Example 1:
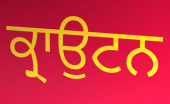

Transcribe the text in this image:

ਕ੍ਰਾਉਟਨ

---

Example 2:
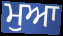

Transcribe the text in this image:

ਮੁਆ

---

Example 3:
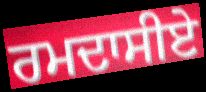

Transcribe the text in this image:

ਰਮਦਾਸੀਏ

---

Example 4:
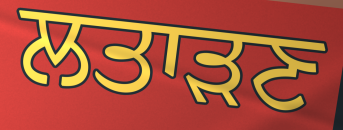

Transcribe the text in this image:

ਲਤਾੜਣ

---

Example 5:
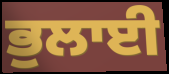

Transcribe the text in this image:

ਭੁਲਾਈ